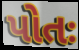
પોતઃ